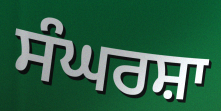
ਸੰਘਰਸ਼ਾ